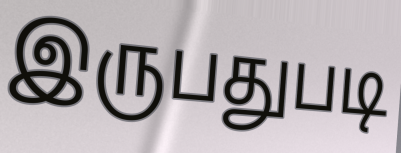
இருபதுபடி